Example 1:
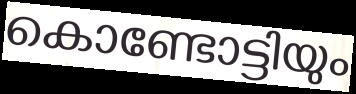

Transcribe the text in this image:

കൊണ്ടോട്ടിയും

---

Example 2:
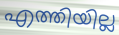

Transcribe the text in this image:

എത്തിയില്ല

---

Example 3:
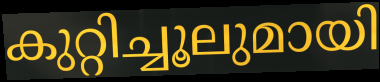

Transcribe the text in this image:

കുറ്റിച്ചൂലുമായി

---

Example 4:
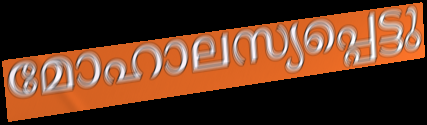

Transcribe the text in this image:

മോഹാലസ്യപ്പെട്ടു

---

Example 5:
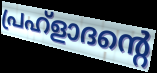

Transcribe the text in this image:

പ്രഹ്ളാദന്റെ